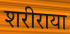
शरीराया